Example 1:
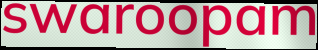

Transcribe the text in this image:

swaroopam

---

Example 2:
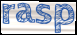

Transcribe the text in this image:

rasp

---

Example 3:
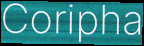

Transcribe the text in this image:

Coripha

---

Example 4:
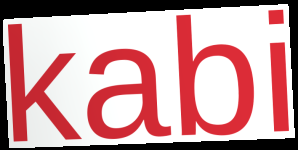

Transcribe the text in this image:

kabi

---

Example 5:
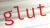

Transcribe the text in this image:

glut